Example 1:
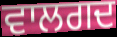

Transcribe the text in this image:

ਵਾਲਗਦ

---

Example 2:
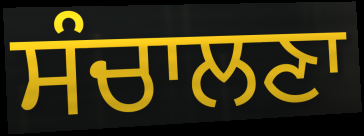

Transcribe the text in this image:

ਸੰਚਾਲਣਾ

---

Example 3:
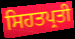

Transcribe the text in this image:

ਸਿਹਤਪ੍ਰਤੀ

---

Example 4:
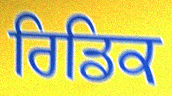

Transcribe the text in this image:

ਰਿਡਿਕ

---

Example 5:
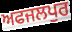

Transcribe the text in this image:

ਅਫਜਲਪੁਰ